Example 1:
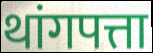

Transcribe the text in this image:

थांगपत्ता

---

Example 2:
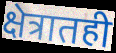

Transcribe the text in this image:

क्षेत्रातही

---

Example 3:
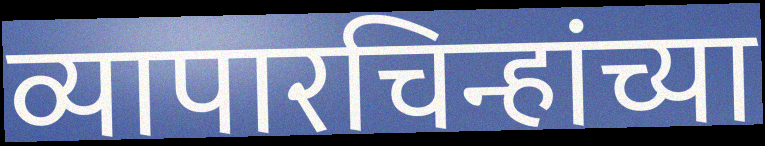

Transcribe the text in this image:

व्यापारचिन्हांच्या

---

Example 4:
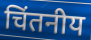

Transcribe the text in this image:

चिंतनीय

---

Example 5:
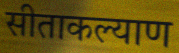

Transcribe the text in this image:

सीताकल्याण